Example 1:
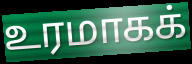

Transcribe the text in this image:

உரமாகக்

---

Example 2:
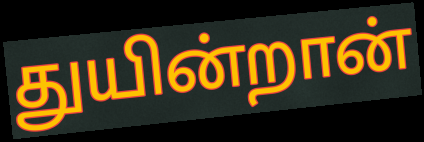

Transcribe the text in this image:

துயின்றான்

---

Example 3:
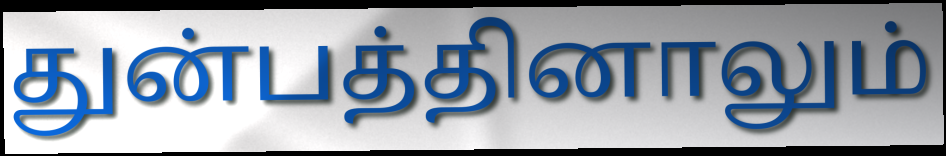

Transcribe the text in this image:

துன்பத்தினாலும்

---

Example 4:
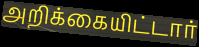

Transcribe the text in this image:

அறிக்கையிட்டார்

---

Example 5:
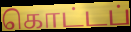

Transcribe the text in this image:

கொட்டப்